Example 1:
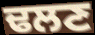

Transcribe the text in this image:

ਢਲਣ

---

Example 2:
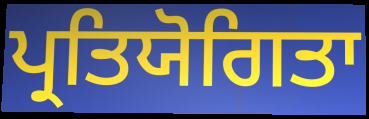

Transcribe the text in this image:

ਪ੍ਰਤਿਯੋਗਿਤਾ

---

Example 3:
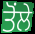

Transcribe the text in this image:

ਤੋਂਲੇ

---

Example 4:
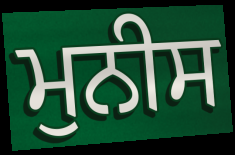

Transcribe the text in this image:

ਮੁਨੀਸ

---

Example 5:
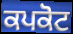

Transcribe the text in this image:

ਕਪਕੋਟ